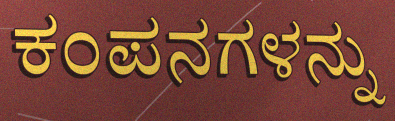
ಕಂಪನಗಳನ್ನು